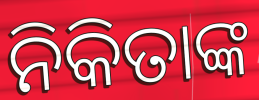
ନିକିତାଙ୍କ